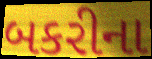
બકરીના